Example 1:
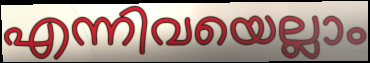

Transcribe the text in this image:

എന്നിവയെല്ലാം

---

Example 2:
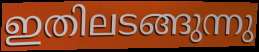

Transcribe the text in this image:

ഇതിലടങ്ങുന്നു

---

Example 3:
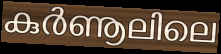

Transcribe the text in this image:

കുർണൂലിലെ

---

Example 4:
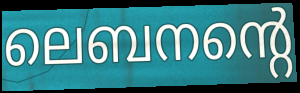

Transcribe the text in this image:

ലെബനന്റെ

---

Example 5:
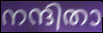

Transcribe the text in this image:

നന്ദിതാ